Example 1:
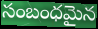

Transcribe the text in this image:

సంబంధమైన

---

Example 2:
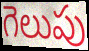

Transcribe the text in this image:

గెలుపు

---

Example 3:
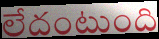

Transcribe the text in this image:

లేదంటుంది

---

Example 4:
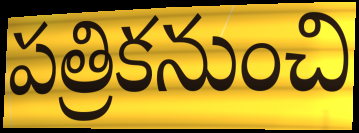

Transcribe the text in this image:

పత్రికనుంచి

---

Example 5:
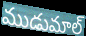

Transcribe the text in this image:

ముడుమాల్